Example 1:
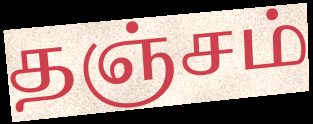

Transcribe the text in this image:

தஞ்சம்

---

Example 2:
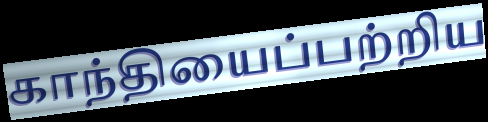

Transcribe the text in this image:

காந்தியைப்பற்றிய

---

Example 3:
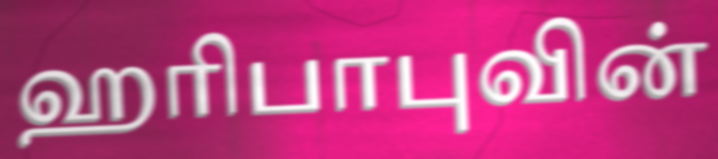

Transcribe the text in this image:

ஹரிபாபுவின்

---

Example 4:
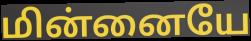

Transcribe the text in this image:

மின்னையே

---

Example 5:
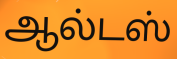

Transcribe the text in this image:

ஆல்டஸ்